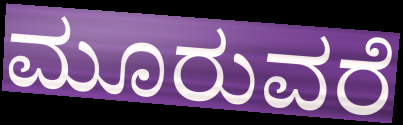
ಮೂರುವರೆ